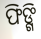
ଫିଙ୍ଗି